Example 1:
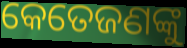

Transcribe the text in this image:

କେତେଜଣଙ୍କୁ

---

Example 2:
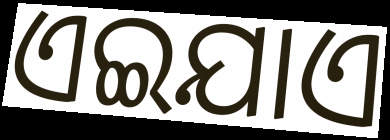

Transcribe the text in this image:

ଏଇଯାଏ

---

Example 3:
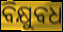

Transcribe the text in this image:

ବିକ୍ଷୁବଧ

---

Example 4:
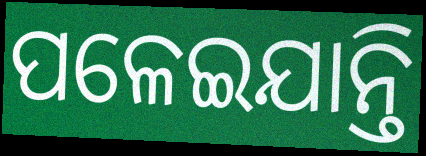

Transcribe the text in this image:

ପଳେଇଯାନ୍ତି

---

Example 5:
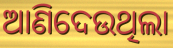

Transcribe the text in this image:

ଆଣିଦେଉଥିଲା